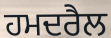
ਹਮਦਰੈਲ